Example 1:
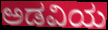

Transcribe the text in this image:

ಅಡವಿಯ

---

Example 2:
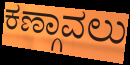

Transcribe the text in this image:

ಕಣ್ಗಾವಲು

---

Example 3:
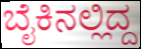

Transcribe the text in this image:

ಬೈಕಿನಲ್ಲಿದ್ದ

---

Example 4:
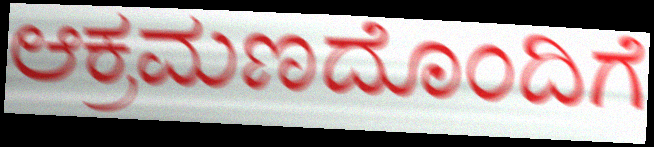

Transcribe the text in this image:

ಆಕ್ರಮಣದೊಂದಿಗೆ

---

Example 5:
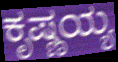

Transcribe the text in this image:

ಕೃಷ್ಣಯ್ಯ